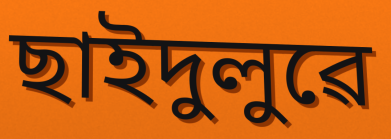
ছাইদুলুৱে